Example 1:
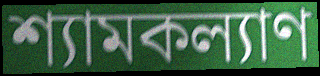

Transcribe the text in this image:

শ্যামকল্যাণ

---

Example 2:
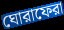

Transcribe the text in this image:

ঘোরাফেরা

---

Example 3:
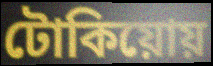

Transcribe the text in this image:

টোকিয়োয়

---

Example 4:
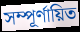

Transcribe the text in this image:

সম্পূর্ণায়িত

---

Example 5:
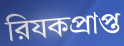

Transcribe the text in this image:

রিযকপ্রাপ্ত